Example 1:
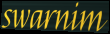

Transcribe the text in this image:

swarnim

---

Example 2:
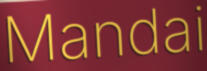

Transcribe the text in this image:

Mandai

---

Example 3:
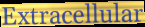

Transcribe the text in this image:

Extracellular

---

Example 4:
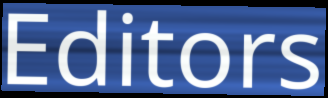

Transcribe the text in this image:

Editors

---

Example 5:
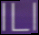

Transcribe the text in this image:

ILI